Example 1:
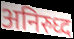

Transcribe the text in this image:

अनिरुध्द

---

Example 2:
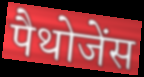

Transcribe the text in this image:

पैथोजेंस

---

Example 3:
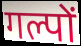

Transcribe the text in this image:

गल्पों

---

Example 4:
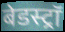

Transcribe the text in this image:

बेडस्ट्रॉ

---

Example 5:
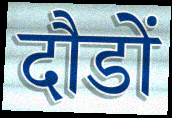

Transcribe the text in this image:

दौडों